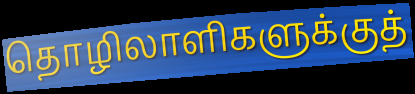
தொழிலாளிகளுக்குத்